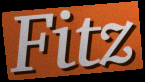
Fitz